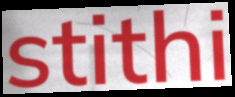
stithi